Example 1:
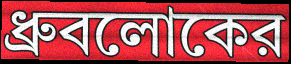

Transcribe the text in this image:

ধ্রুবলোকের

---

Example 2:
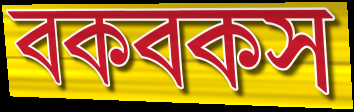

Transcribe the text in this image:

বকবকস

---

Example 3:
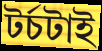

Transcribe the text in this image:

টর্চটাই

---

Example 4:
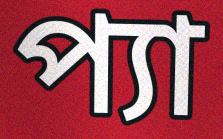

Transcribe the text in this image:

প্যা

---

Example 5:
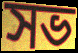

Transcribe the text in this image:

সভ